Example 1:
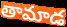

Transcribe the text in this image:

తామాడ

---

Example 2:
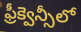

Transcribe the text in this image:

ఫ్రీక్వెన్సీలో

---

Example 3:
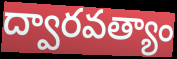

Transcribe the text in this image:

ద్వారవత్యాం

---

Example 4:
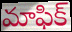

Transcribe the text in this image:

మాఫిక్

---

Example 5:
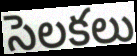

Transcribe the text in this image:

సెలకలు